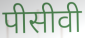
पीसीवी